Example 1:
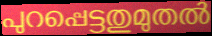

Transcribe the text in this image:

പുറപ്പെട്ടതുമുതൽ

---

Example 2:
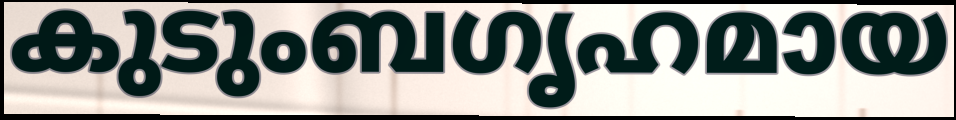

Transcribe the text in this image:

കുടുംബഗൃഹമായ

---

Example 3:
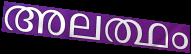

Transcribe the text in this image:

അലത്ഥം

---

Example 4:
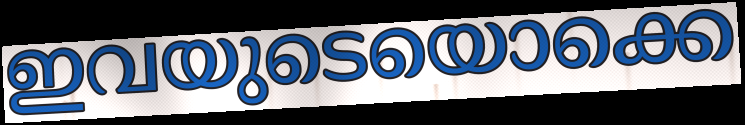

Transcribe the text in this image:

ഇവയുടെയൊക്കെ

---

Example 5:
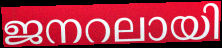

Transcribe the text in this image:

ജനറലായി